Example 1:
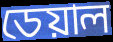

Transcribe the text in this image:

ডেয়াল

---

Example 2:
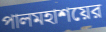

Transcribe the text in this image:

পালমহাশয়ের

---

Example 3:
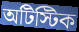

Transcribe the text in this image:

অটিস্টিক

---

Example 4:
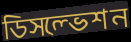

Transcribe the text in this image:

ডিসল্ভেশন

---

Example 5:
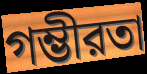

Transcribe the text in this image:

গম্ভীরতা